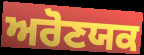
ਅਰੋਣਯਕ